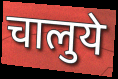
चालुये